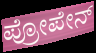
ಪ್ರೋಪೇನ್